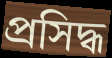
প্ৰসিদ্ধ